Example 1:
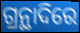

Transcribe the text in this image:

ଗ୍ରନ୍ଥାଦିରେ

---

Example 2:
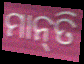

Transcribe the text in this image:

ମାନ୍‌ତି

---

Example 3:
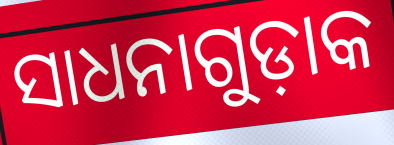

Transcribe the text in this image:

ସାଧନାଗୁଡ଼ାକ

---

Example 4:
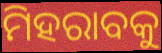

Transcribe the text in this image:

ମିହରାବକୁ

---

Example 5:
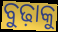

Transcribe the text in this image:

ବୁଢ଼ାକୁ